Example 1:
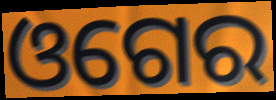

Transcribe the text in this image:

ଓଗେର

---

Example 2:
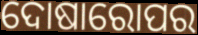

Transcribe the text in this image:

ଦୋଷାରୋପର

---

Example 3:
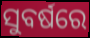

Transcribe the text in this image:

ସୁବର୍ଷରେ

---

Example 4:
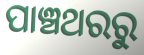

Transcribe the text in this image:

ପାଞ୍ଚଥରରୁ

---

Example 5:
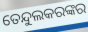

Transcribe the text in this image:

ତେନ୍ଦୁଲକରଙ୍କର